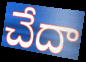
చేదా